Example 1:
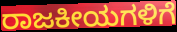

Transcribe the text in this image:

ರಾಜಕೀಯಗಳಿಗೆ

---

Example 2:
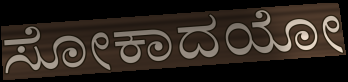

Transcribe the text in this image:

ಸೋಕಾದಯೋ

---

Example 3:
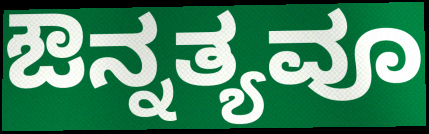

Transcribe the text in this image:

ಔನ್ನತ್ಯವೂ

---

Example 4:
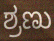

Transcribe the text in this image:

ಶ್ರಣು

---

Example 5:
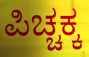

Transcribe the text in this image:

ಪಿಚ್ಚಕ್ಕ